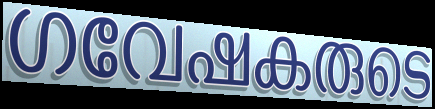
ഗവേഷകരുടെ